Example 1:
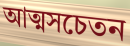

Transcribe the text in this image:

আত্মসচেতন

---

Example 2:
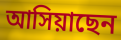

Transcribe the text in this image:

আসিয়াছেন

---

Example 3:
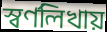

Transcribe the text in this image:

স্বর্ণলিখায়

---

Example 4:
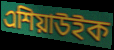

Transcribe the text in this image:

এশিয়াউইক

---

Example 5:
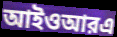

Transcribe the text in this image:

আইওআরএ